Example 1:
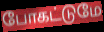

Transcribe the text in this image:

போகட்டுமே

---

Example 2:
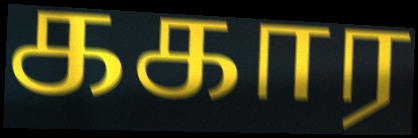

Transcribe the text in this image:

ககார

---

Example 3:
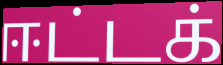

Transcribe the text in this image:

ஈட்டக்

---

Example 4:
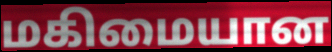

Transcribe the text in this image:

மகிமையான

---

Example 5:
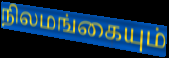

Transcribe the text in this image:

நிலமங்கையும்